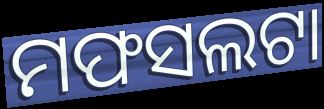
ମଫସଲଟା